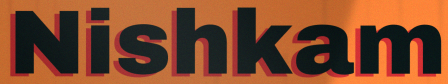
Nishkam